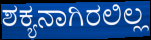
ಶಕ್ಯನಾಗಿರಲಿಲ್ಲ